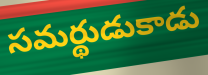
సమర్థుడుకాడు